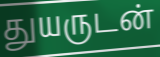
துயருடன்